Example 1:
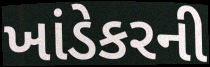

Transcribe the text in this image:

ખાંડેકરની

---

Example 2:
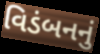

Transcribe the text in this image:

વિડંબનનું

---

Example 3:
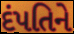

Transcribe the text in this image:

દંપતિને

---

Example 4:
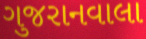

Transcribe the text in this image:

ગુજરાનવાલા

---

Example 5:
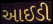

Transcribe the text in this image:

આઈડી